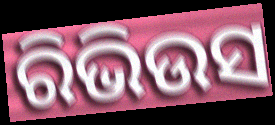
ରିଭିଉସ